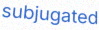
subjugated